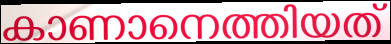
കാണാനെത്തിയത്